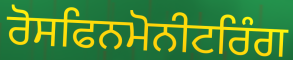
ਰੋਸਫਿਨਮੋਨੀਟਰਿੰਗ